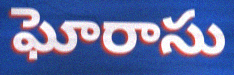
ఘోరాసు